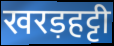
खरड़हट्टी